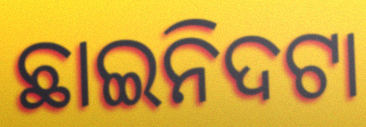
ଛାଇନିଦଟା